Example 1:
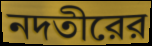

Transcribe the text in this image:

নদতীরের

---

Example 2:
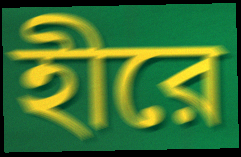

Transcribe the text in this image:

হীরে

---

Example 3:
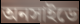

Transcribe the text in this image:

অনসাইডে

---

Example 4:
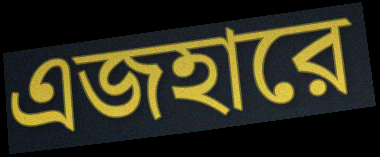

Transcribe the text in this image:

এজহারে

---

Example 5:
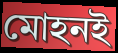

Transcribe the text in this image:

মোহনই